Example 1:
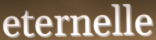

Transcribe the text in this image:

eternelle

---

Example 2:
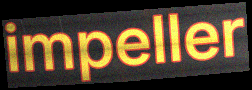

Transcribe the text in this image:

impeller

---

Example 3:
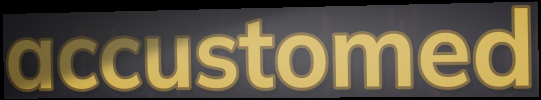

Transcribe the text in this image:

accustomed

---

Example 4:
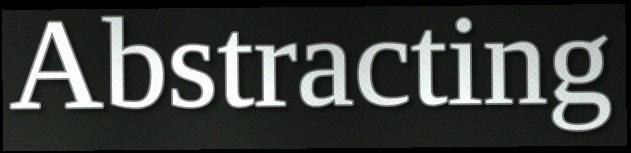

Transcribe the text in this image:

Abstracting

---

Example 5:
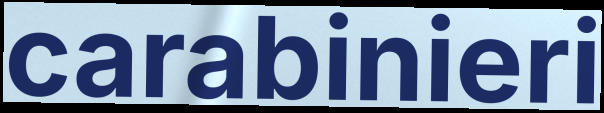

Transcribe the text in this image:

carabinieri